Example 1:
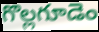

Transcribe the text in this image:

గొల్లగూడెం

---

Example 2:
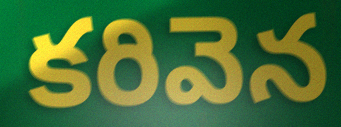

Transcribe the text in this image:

కరివెన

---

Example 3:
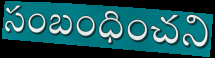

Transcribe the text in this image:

సంబంధించని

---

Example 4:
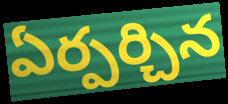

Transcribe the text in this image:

ఏర్పర్చిన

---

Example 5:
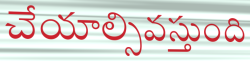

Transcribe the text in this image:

చేయాల్సివస్తుంది